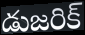
డుజరిక్